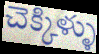
చెక్కిళ్ళు